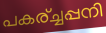
പകര്ച്ചപ്പനി